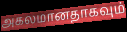
அகலமானதாகவும்